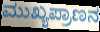
ಮುಖ್ಯಪ್ರಾಣನ